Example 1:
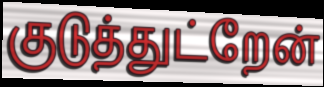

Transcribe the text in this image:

குடுத்துட்றேன்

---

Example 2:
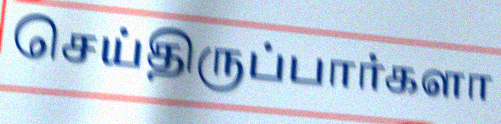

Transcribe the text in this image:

செய்திருப்பார்களா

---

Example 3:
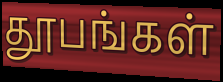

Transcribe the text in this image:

தூபங்கள்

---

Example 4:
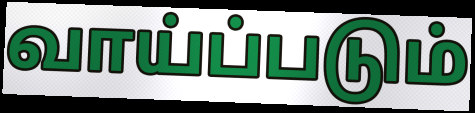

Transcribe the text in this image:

வாய்ப்படும்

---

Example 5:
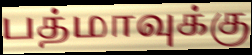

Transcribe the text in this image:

பத்மாவுக்கு